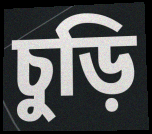
চুড়ি